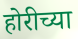
होरीच्या